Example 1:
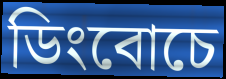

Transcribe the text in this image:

ডিংবোচে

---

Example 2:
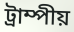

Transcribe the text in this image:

ট্রাম্পীয়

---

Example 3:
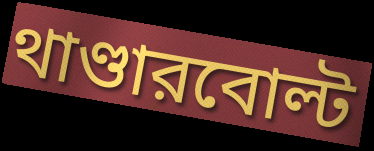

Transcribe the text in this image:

থাণ্ডারবোল্ট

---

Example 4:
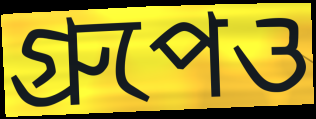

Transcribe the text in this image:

গ্রুপেও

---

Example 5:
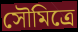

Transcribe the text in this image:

সৌমিত্রে